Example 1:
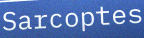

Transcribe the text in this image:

Sarcoptes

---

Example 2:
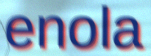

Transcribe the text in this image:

enola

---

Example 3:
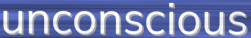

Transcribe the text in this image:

unconscious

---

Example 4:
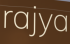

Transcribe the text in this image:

rajya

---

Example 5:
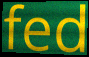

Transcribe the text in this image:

fed